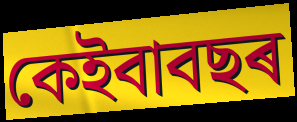
কেইবাবছৰ